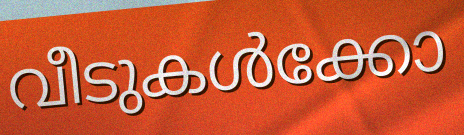
വീടുകൾക്കോ